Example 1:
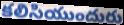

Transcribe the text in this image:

కలిసియుందురు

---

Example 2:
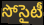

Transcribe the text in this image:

సోసైటీ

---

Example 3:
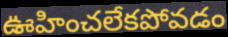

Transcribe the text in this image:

ఊహించలేకపోవడం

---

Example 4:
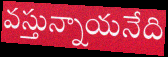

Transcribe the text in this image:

వస్తున్నాయనేది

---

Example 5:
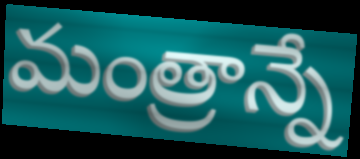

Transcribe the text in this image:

మంత్రాన్నే